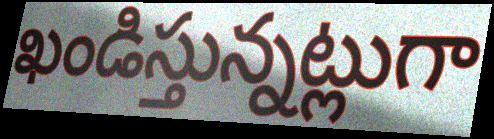
ఖండిస్తున్నట్లుగా